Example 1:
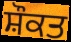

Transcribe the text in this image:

ਸ਼ੌਕਤ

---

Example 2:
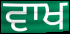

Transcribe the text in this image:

ਵਾਖ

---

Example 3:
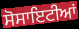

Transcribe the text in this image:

ਸੋਸਾਇਟੀਆਂ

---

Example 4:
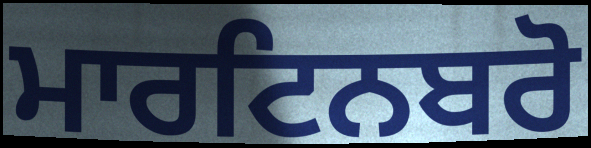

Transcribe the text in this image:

ਮਾਰਟਿਨਬਰੋ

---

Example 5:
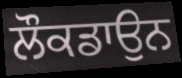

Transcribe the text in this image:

ਲੌਕਡਾਉਨ